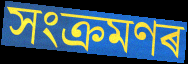
সংক্ৰমণৰ